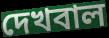
দেখবাল